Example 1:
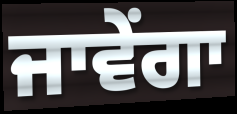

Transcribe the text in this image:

ਜਾਵੇਂਗਾ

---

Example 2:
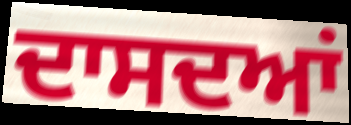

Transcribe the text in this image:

ਦਾਸਦਆਂ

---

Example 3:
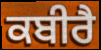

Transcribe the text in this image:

ਕਬੀਰੈ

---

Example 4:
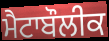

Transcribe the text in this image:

ਮੈਟਾਬੌਲੀਕ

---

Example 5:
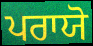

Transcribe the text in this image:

ਪਰਾਯੋ